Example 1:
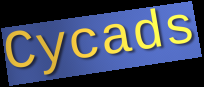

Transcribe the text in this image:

Cycads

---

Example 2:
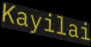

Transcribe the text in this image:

Kayilai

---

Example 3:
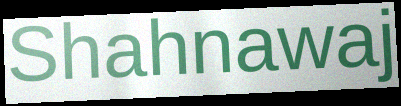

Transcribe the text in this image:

Shahnawaj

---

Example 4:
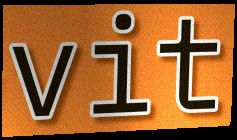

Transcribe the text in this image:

vit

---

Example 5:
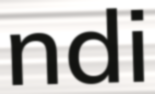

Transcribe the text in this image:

ndi